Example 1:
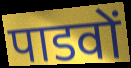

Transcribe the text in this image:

पाडवों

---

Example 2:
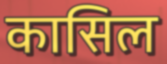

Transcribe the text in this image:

कासिल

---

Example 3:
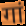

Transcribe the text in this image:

गां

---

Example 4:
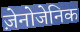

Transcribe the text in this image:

ज़ेनोजेनिक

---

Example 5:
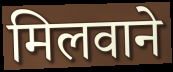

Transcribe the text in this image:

मिलवाने